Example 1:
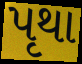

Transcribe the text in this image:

પૃથા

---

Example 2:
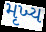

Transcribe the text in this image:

મૃખ્ય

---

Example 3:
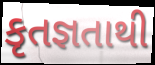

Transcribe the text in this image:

કૃતજ્ઞતાથી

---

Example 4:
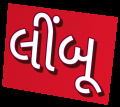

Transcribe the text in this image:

લીંબૂ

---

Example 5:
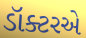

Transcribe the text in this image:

ડૉક્ટરએ